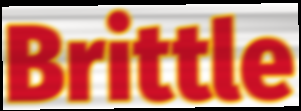
Brittle